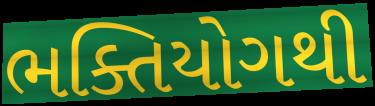
ભક્તિયોગથી